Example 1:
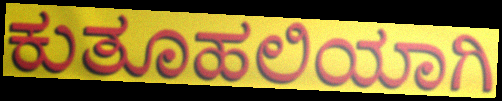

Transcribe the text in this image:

ಕುತೂಹಲಿಯಾಗಿ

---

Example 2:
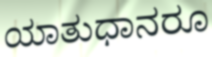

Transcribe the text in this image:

ಯಾತುಧಾನರೂ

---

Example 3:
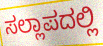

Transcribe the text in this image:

ಸಲ್ಲಾಪದಲ್ಲಿ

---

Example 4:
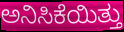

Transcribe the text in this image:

ಅನಿಸಿಕೆಯಿತ್ತು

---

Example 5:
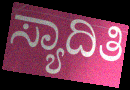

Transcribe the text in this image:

ಸ್ಯಾದಿತಿ